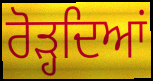
ਰੋੜ੍ਹਦਿਆਂ